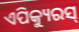
ଏପିକ୍ୟୁରସ୍